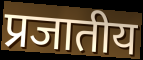
प्रजातीय